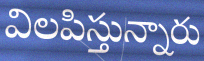
విలపిస్తున్నారు